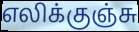
எலிக்குஞ்சு